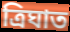
ত্ৰিঘাত